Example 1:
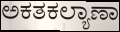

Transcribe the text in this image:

ಅಕತಕಲ್ಯಾಣಾ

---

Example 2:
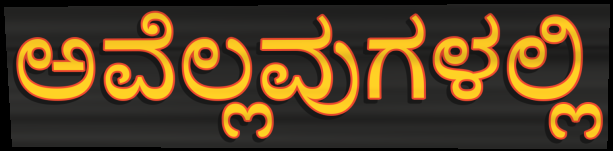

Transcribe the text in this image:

ಅವೆಲ್ಲವುಗಳಲ್ಲಿ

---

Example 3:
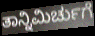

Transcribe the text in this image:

ತಾನ್ನಿಮಿರ್ಚುಗೆ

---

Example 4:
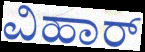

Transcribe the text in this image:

ವಿಹಾರ್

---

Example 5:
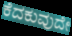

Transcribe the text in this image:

ಕೆದಕುವುದೇ